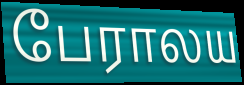
பேராலய